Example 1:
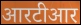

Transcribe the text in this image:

आरटीआर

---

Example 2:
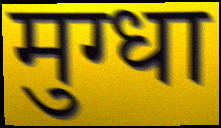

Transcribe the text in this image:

मुग्धा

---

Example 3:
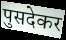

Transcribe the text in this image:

पुसदेकर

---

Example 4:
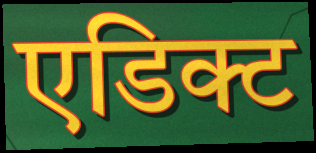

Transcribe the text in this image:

एडिक्ट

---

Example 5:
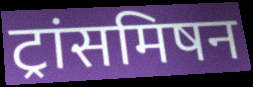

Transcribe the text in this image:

ट्रांसमिषन